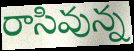
రాసివున్న